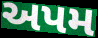
અપમ